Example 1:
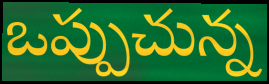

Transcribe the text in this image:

ఒప్పుచున్న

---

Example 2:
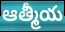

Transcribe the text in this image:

ఆత్మీయ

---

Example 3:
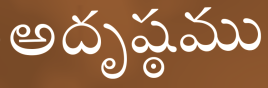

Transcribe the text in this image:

అదృష్ఠము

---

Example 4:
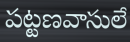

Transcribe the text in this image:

పట్టణవాసులే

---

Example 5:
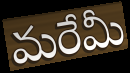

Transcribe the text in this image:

మరేమీ